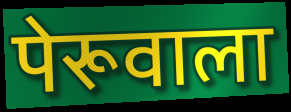
पेरूवाला